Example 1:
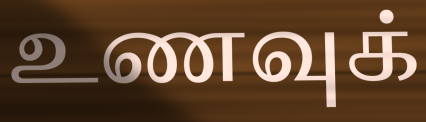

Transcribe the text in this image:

உணவுக்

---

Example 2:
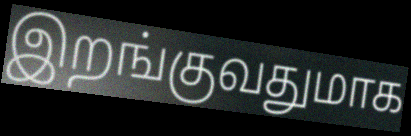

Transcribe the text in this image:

இறங்குவதுமாக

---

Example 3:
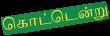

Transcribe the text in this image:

கொட்டென்று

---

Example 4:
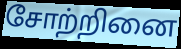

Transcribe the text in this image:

சோற்றினை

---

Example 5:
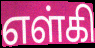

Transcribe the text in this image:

எள்கி